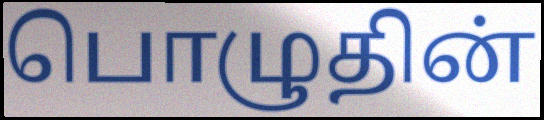
பொழுதின்